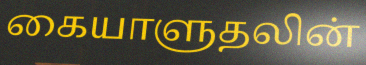
கையாளுதலின்